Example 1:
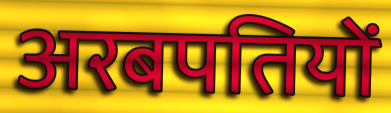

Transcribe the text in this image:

अरबपतियों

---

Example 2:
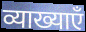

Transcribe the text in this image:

व्याख्याएँ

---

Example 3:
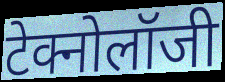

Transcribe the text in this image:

टेक्नोलॉजी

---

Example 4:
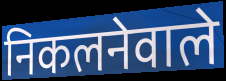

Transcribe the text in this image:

निकलनेवाले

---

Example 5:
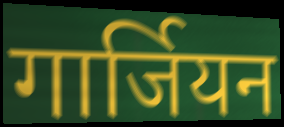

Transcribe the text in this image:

गार्जियन